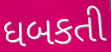
ધબકતી